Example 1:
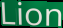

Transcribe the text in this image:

Lion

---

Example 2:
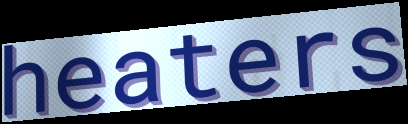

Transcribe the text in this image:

heaters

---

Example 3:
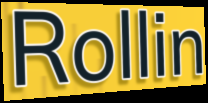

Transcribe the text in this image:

Rollin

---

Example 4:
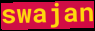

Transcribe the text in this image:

swajan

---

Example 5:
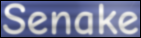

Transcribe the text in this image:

Senake